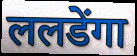
ललडेंगा